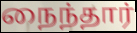
நைந்தார்